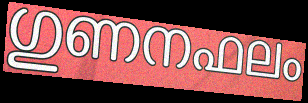
ഗുണനഫലം